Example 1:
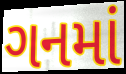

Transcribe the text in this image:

ગનમાં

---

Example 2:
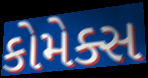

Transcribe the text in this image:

કોમેક્સ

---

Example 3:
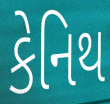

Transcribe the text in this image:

કેનિથ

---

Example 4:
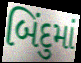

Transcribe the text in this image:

બિંદુમાં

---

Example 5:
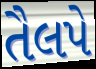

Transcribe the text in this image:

તૈલપે